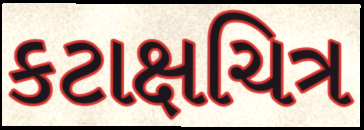
કટાક્ષચિત્ર